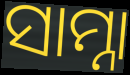
ସାମ୍ନା